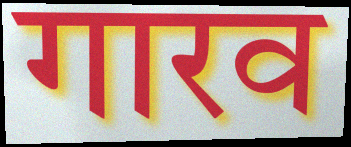
गारव